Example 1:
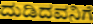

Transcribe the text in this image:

ದುಡಿದವನಿಗೆ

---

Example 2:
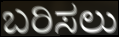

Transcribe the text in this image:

ಬರಿಸಲು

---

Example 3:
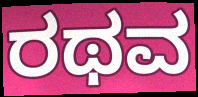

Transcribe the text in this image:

ರಥವ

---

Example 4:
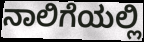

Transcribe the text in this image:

ನಾಲಿಗೆಯಲ್ಲಿ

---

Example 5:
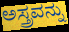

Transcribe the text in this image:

ಅಸ್ತ್ರವನ್ನು